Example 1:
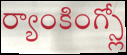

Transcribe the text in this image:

ర్యాంకింగ్స్లో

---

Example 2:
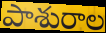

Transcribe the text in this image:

పాశురాల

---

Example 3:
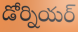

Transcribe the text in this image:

డోర్నియర్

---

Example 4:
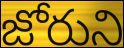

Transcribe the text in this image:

జోరుని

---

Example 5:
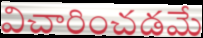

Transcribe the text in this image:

విచారించడమే